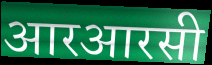
आरआरसी